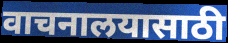
वाचनालयासाठी